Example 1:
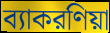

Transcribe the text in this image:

ব্যাকরণিয়া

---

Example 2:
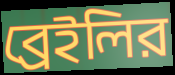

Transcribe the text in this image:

ব্রেইলির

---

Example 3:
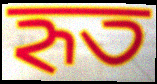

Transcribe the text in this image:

হৃত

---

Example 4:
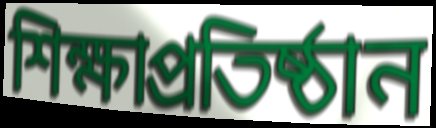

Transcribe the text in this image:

শিক্ষাপ্রতিষ্ঠান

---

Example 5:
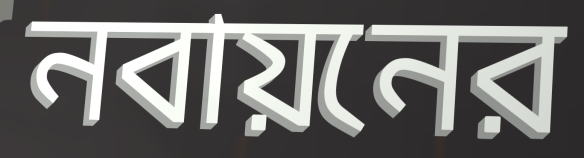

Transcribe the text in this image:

নবায়নের